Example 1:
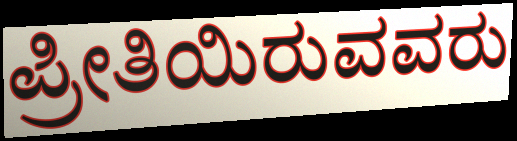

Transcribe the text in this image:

ಪ್ರೀತಿಯಿರುವವರು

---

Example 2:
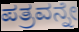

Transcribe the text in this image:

ಪತ್ರವನ್ನೇ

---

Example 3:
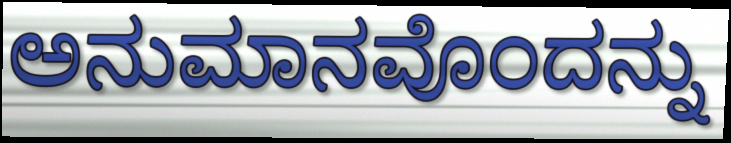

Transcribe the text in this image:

ಅನುಮಾನವೊಂದನ್ನು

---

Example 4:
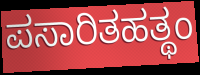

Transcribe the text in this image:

ಪಸಾರಿತಹತ್ಥಂ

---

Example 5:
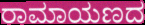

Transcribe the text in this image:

ರಾಮಾಯಣದ